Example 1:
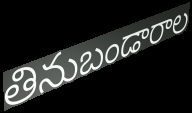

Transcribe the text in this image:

తినుబండారాల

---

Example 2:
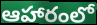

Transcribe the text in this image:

ఆహారంలో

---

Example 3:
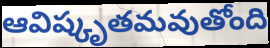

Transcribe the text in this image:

ఆవిష్కృతమవుతోంది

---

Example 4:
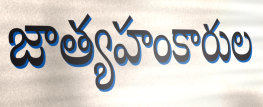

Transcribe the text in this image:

జాత్యహంకారుల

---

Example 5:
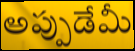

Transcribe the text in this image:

అప్పుడేమీ